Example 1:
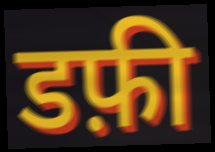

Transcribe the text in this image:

डफ़ी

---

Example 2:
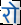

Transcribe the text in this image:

रो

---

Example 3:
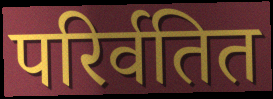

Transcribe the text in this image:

परिर्वतित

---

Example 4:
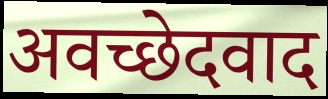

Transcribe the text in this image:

अवच्छेदवाद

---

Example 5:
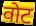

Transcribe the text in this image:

वोट